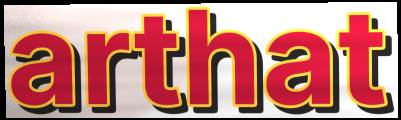
arthat